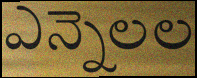
ఎన్నెలల